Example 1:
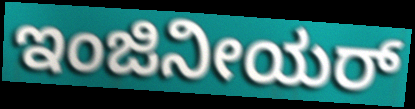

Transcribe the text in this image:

ಇಂಜಿನೀಯರ್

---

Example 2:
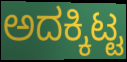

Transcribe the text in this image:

ಅದಕ್ಕಿಟ್ಟ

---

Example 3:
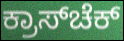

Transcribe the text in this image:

ಕ್ರಾಸ್‌ಚೆಕ್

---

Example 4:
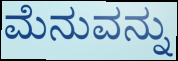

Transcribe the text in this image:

ಮೆನುವನ್ನು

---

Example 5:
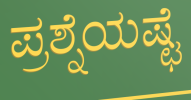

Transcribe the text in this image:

ಪ್ರಶ್ನೆಯಷ್ಟೆ